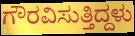
ಗೌರವಿಸುತ್ತಿದ್ದಳು